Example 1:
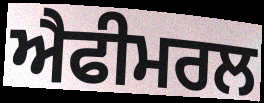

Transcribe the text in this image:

ਐਫੀਮਰਲ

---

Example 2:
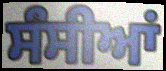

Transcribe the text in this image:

ਸੰਸੀਆਂ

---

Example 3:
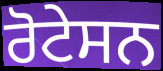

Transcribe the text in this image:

ਰੋਟੇਸਨ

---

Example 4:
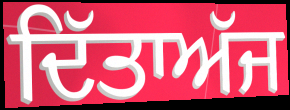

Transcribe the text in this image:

ਦਿੱਤਾਅੱਜ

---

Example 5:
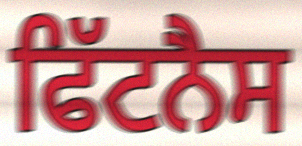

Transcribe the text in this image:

ਫਿੱਟਨੈਸ